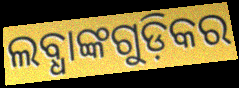
ଲବ୍ଧାଙ୍କଗୁଡ଼ିକର